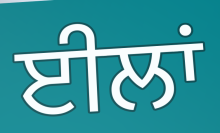
ਈਲਾਂ